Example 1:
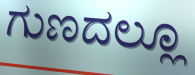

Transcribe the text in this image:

ಗುಣದಲ್ಲೂ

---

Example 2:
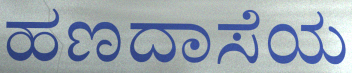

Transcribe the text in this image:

ಹಣದಾಸೆಯ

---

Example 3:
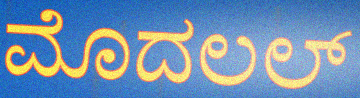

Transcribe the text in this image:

ಮೊದಲಲ್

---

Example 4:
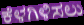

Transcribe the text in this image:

ಕೆಳಗಿಳಿಸಲು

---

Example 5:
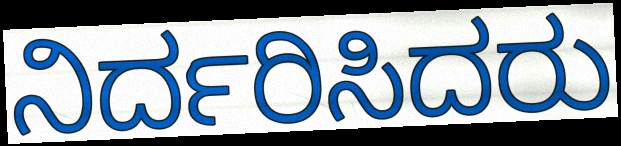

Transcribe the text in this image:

ನಿರ್ದರಿಸಿದರು